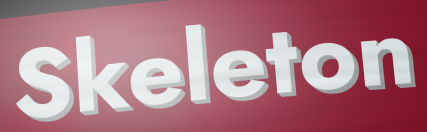
Skeleton